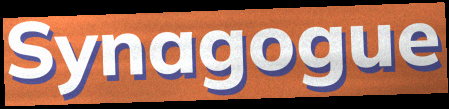
Synagogue